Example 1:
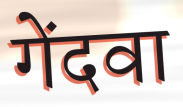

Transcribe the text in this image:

गेंदवा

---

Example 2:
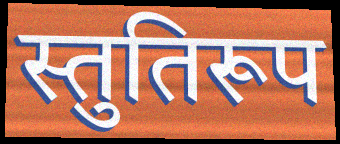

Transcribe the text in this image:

स्तुतिरूप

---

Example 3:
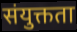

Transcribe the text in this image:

संयुक्तता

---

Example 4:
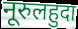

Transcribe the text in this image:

नूरुलहुदा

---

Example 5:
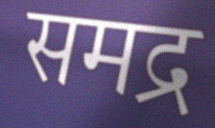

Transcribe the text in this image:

समद्र